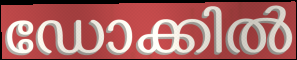
ഡോക്കിൽ